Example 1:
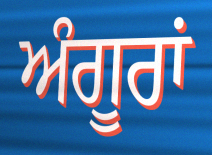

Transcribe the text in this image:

ਅੰਗੂਰਾਂ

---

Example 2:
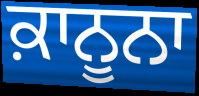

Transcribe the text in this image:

ਕ਼ਾਨੂਨਾ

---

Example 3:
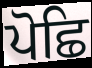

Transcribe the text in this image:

ਪੋਛਿ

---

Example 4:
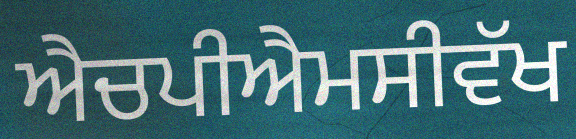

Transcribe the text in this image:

ਐਚਪੀਐਮਸੀਵੱਖ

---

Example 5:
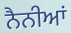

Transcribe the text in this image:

ਨੈਨੀਆਂ